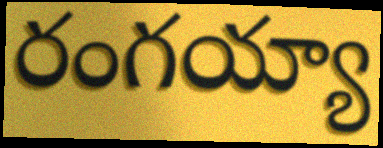
రంగయ్యా